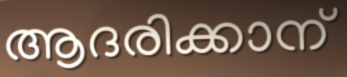
ആദരിക്കാന്